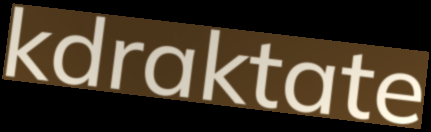
kdraktate